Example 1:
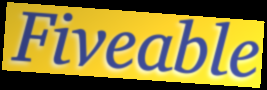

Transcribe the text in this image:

Fiveable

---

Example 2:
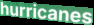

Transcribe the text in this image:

hurricanes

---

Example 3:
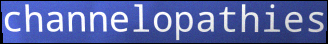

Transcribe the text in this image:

channelopathies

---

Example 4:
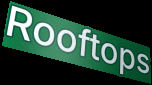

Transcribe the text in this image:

Rooftops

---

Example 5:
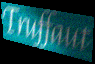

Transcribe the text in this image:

Truffaut